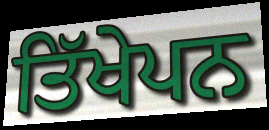
ਤਿੱਖੇਪਨ